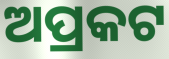
ଅପ୍ରକଟ